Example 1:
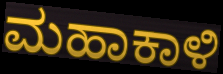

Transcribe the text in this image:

ಮಹಾಕಾಳಿ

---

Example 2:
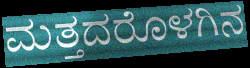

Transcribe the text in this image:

ಮತ್ತದರೊಳಗಿನ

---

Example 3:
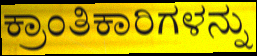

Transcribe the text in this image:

ಕ್ರಾಂತಿಕಾರಿಗಳನ್ನು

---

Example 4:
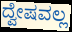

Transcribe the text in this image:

ದ್ವೇಷವಲ್ಲ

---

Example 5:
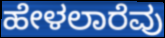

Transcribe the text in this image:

ಹೇಳಲಾರೆವು